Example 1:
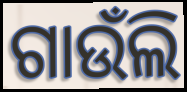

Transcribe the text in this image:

ଗାଉଁଲି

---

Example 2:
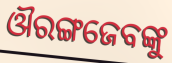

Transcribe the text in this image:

ଔରଙ୍ଗଜେବଙ୍କୁ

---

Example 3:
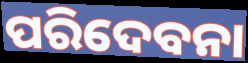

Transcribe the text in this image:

ପରିଦେବନା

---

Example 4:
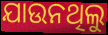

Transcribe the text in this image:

ଯାଉନଥିଲୁ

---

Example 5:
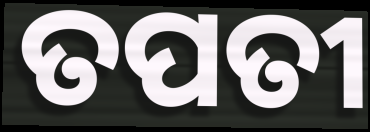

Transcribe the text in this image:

ତପତୀ